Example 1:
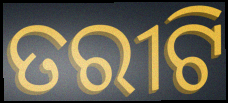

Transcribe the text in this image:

ତରୀଟି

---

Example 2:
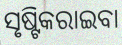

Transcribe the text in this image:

ସୃଷ୍ଟିକରାଇବା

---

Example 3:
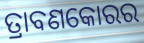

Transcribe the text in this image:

ତ୍ରାବଣକୋରର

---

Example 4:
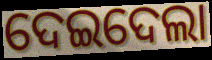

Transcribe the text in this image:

ଦେଇଦେଲା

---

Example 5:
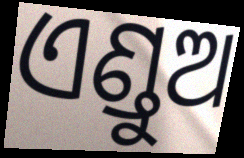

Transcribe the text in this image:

ଏଣ୍ଡୁଅ